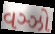
વઞ્ઝો